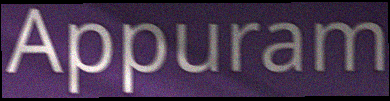
Appuram